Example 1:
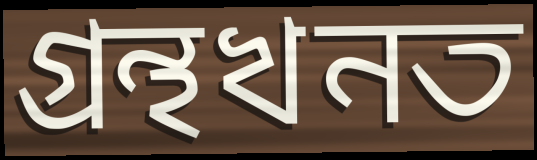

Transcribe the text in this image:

গ্ৰন্থখনত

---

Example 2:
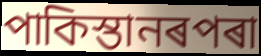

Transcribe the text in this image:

পাকিস্তানৰপৰা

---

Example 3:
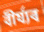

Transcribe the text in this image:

বীৰ্য্যৰ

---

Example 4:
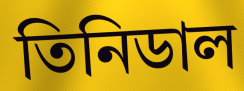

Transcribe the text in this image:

তিনিডাল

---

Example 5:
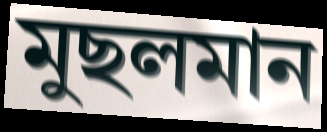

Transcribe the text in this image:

মুছলমান